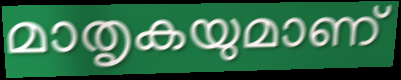
മാതൃകയുമാണ്